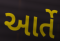
આર્તે